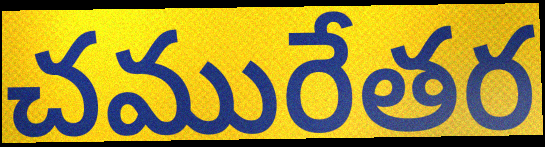
చమురేతర